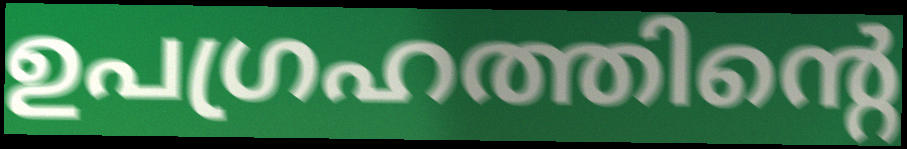
ഉപഗ്രഹത്തിന്റെ